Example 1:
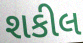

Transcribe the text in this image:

શકીલ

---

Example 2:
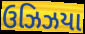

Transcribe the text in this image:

ઉઝિઝયા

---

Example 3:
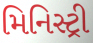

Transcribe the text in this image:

મિનિસ્ટ્રી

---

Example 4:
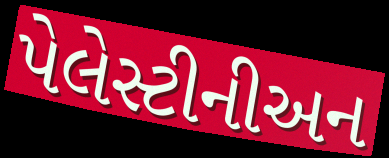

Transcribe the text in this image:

પેલેસ્ટીનીઅન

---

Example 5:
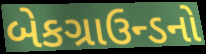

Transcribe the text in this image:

બેકગ્રાઉન્ડનો